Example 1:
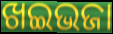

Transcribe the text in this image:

ଖଇଭଜା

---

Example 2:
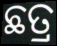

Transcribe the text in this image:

ଛତ୍ର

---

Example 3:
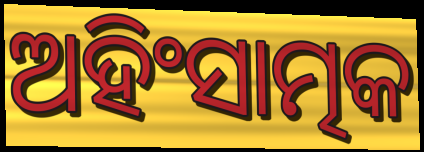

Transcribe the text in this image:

ଅହିଂସାତ୍ମକ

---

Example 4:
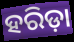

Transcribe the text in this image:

ହରିଡ଼ା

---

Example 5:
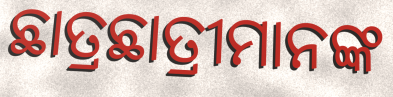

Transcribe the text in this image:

ଛାତ୍ରଛାତ୍ରୀମାନଙ୍କ